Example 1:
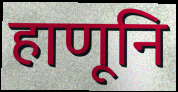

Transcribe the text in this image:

हाणूनि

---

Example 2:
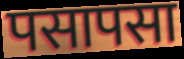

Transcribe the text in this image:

पसापसा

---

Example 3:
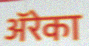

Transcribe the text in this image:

ॲरेका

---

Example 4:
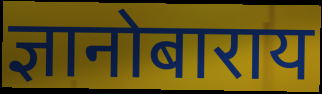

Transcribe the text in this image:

ज्ञानोबाराय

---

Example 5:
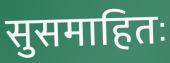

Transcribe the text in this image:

सुसमाहितः